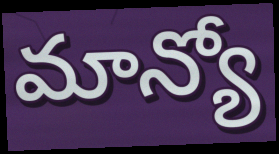
మాన్యో